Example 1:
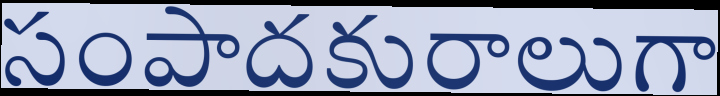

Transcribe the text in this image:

సంపాదకురాలుగా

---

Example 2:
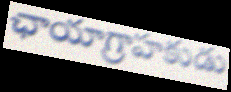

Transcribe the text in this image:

ఛాయాగ్రాహకుడు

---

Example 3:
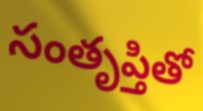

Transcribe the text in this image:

సంతృప్తితో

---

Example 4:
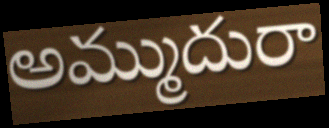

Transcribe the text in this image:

అమ్ముదురా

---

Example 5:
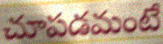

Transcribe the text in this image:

చూపడమంటే